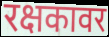
रक्षकावर